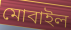
মোবাইল